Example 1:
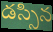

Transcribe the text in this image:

డస్సిన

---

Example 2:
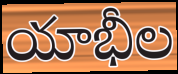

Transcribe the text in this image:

యాభీల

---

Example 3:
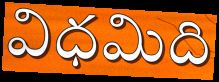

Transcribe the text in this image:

విధమిది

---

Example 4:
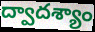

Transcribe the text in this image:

ద్వాదశ్యాం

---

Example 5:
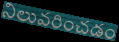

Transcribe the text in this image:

నిలువరించడం